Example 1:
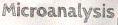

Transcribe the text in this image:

Microanalysis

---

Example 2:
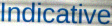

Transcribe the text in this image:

Indicative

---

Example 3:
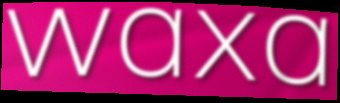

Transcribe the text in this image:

waxa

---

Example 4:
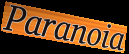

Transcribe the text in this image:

Paranoia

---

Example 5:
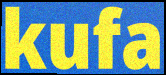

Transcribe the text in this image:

kufa